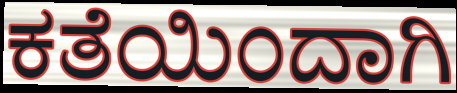
ಕತೆಯಿಂದಾಗಿ